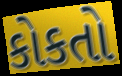
કોકતો